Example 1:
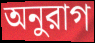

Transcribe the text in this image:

অনুরাগ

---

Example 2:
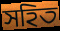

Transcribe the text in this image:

সহিত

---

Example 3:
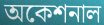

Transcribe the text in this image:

অকেশনাল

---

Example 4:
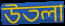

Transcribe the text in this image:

উতলা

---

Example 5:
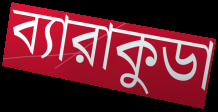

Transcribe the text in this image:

ব্যারাকুডা